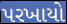
પરખાયો